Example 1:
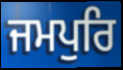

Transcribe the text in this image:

ਜਮਪੁਰਿ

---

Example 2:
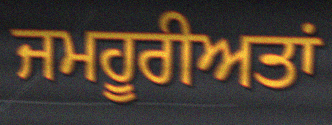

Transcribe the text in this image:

ਜਮਹੂਰੀਅਤਾਂ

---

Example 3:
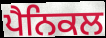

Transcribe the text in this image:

ਪੈਨਿਕਲ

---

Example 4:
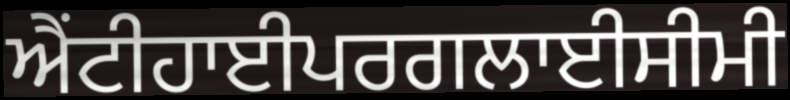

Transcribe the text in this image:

ਐਂਟੀਹਾਈਪਰਗਲਾਈਸੀਮੀ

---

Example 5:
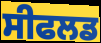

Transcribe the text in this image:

ਸੀਫਲਡ